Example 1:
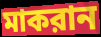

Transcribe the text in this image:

মাকরান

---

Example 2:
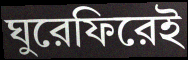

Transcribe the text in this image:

ঘুরেফিরেই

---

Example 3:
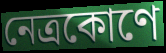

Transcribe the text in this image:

নেত্রকোণে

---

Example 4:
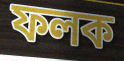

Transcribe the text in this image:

ফলক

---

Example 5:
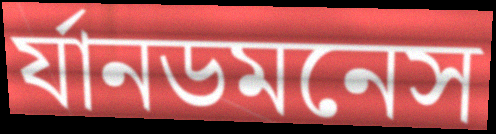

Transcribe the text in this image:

র্যানডমনেস